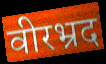
वीरभ्रद